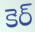
కెర్